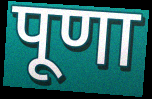
पूणा